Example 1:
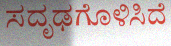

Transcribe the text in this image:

ಸದೃಢಗೊಳಿಸಿದೆ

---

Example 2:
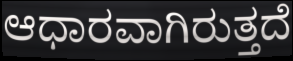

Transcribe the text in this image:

ಆಧಾರವಾಗಿರುತ್ತದೆ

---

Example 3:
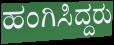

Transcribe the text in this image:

ಹಂಗಿಸಿದ್ದರು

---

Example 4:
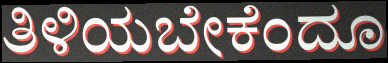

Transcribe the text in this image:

ತಿಳಿಯಬೇಕೆಂದೂ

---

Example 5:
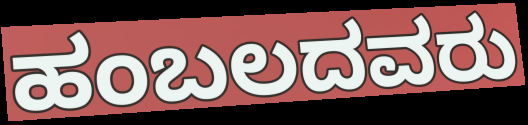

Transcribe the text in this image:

ಹಂಬಲದವರು